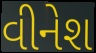
વીનેશ